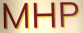
MHP